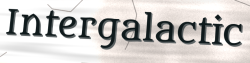
Intergalactic